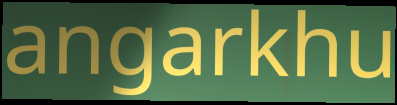
angarkhu